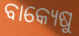
ବାକ୍ୟେଷୁ